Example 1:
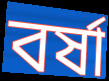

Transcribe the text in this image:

বৰ্ষা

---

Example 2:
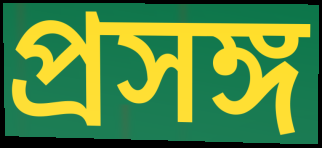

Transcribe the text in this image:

প্ৰসঙ্গ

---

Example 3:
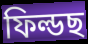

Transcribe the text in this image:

ফিল্ডছ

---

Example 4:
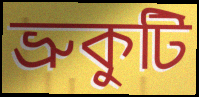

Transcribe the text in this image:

ভ্ৰুকুটি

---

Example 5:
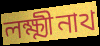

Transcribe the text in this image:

লক্ষ্মীনাথ